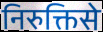
निरुक्तिसे